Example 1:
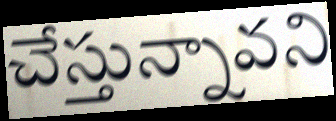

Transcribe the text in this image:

చేస్తున్నావని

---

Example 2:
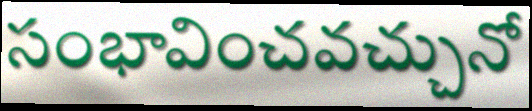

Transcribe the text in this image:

సంభావించవచ్చునో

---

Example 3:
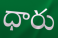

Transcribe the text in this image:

ధారు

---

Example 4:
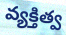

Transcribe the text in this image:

వ్యక్తిత్వ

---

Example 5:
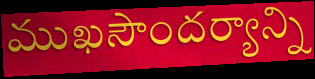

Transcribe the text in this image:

ముఖసౌందర్యాన్ని